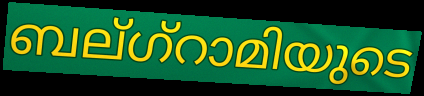
ബല്ഗ്റാമിയുടെ